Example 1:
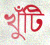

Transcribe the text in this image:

খুঁটি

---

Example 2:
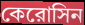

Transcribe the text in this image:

কেরোসিন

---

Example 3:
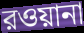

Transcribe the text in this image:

রওয়ানা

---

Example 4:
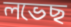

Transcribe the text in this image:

লভেছ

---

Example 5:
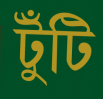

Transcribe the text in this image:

টুঁটি